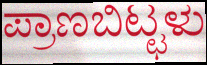
ಪ್ರಾಣಬಿಟ್ಟಳು